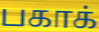
பகாக்